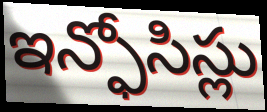
ఇన్ఫోసిస్లు